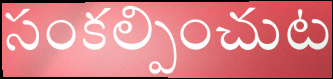
సంకల్పించుట